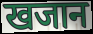
खजान